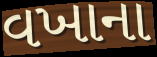
વખાના